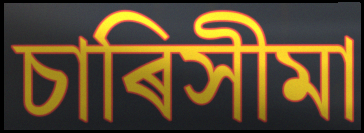
চাৰিসীমা